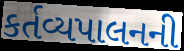
કર્તવ્યપાલનની